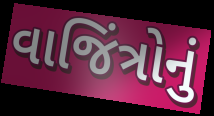
વાજિંત્રોનું